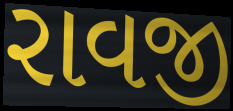
રાવજી